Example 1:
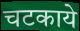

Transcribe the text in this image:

चटकाये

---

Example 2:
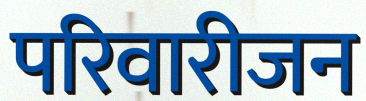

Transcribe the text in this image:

परिवारीजन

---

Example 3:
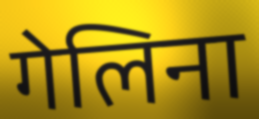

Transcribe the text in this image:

गेलिना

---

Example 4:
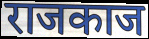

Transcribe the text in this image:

राजकाज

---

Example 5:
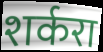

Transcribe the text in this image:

शर्करा